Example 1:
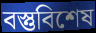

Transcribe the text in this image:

বস্তুবিশেষ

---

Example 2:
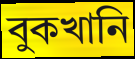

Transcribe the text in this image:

বুকখানি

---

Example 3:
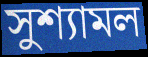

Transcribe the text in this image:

সুশ্যামল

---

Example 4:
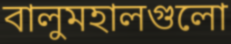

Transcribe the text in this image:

বালুমহালগুলো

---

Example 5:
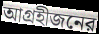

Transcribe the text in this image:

আগ্রহীজনের